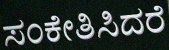
ಸಂಕೇತಿಸಿದರೆ